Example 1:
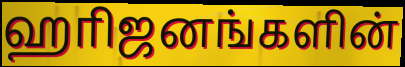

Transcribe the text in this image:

ஹரிஜனங்களின்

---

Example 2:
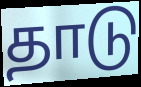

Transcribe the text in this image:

தாடு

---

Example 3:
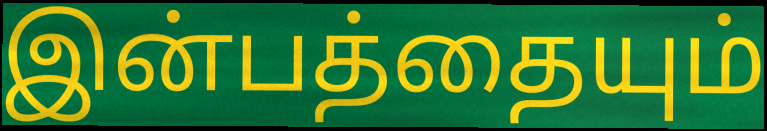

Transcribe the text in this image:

இன்பத்தையும்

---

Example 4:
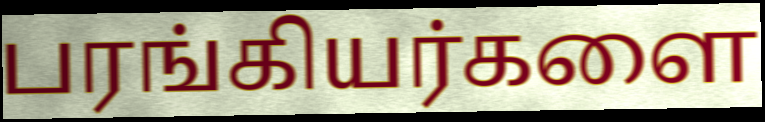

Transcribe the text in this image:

பரங்கியர்களை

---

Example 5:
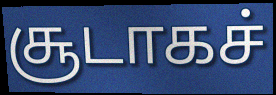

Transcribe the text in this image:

சூடாகச்